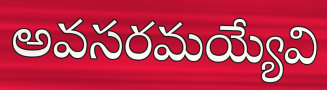
అవసరమయ్యేవి